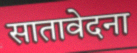
सातावेदना